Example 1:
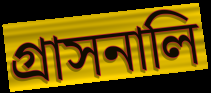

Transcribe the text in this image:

গ্রাসনালি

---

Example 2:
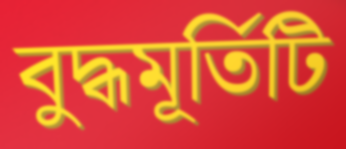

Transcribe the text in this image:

বুদ্ধমূর্তিটি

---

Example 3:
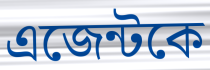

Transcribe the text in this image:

এজেন্টকে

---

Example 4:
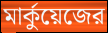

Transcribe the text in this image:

মার্কুয়েজের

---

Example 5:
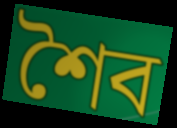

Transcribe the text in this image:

শৈব